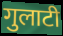
गुलाटी